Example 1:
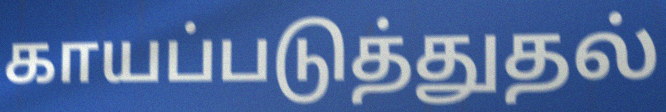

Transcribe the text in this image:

காயப்படுத்துதல்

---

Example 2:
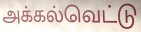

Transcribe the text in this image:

அக்கல்வெட்டு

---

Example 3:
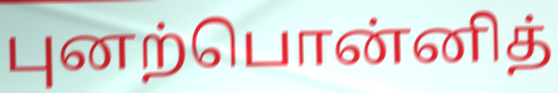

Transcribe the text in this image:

புனற்பொன்னித்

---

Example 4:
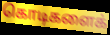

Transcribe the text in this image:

கொடிகளைக்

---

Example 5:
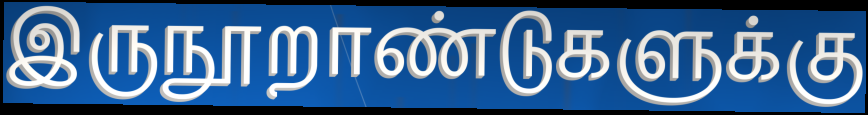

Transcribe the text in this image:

இருநூறாண்டுகளுக்கு